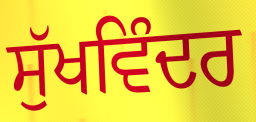
ਸੁੱਖਵਿੰਦਰ